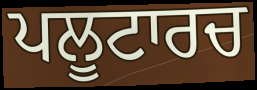
ਪਲੂਟਾਰਚ